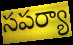
సపర్యా